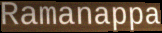
Ramanappa